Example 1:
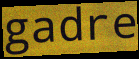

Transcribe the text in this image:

gadre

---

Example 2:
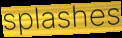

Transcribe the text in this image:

splashes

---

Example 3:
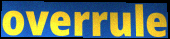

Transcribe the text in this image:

overrule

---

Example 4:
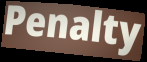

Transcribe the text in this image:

Penalty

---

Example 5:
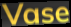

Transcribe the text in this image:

Vase